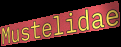
Mustelidae